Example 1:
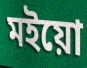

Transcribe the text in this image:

মইয়ো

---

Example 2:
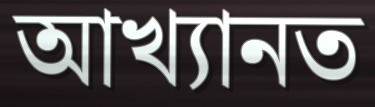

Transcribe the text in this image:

আখ্যানত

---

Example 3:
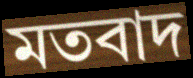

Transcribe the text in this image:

মতবাদ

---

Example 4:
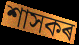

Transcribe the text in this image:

শাসকৰ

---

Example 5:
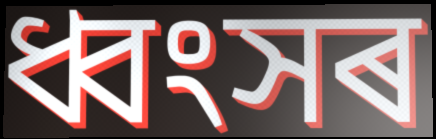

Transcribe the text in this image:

ধ্বংসৰ